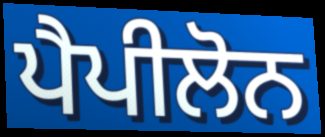
ਪੈਪੀਲੋਨ